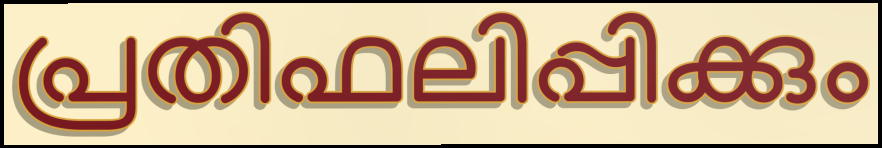
പ്രതിഫലിപ്പിക്കും